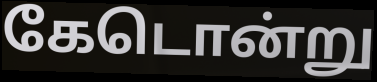
கேடொன்று